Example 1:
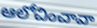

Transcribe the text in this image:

ఆలోచించావా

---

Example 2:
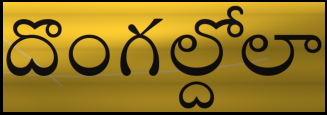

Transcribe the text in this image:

దొంగల్దోలా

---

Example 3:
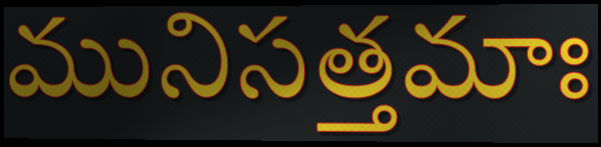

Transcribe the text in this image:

మునిసత్తమాః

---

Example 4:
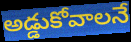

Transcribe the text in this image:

అడ్డుకోవాలనే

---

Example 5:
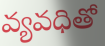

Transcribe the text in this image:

వ్యవధితో